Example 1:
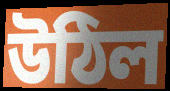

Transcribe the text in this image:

উঠিল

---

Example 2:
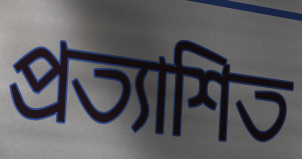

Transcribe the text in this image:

প্ৰত্যাশিত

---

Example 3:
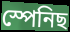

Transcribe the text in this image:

স্পেনিছ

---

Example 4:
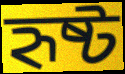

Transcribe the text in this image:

হৃষ্ট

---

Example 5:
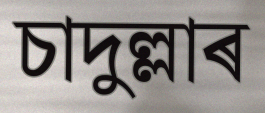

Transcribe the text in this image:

চাদুল্লাৰ